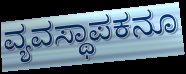
ವ್ಯವಸ್ಥಾಪಕನೂ